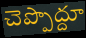
చెప్పొద్దూ